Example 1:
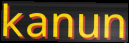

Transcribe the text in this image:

kanun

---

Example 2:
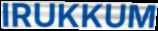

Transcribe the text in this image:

IRUKKUM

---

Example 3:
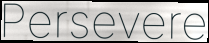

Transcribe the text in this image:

Persevere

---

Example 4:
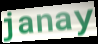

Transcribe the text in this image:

janay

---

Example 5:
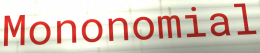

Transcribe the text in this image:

Mononomial